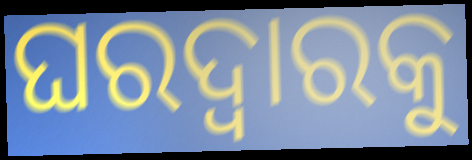
ଘରଦ୍ୱାରକୁ